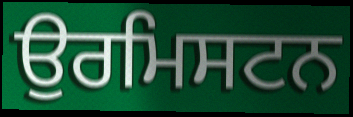
ਉਰਮਿਸਟਨ